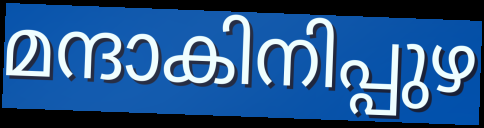
മന്ദാകിനിപ്പുഴ